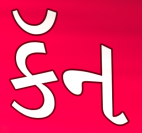
કૅન